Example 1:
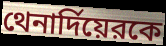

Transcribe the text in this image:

থেনার্দিয়েরকে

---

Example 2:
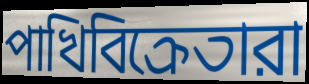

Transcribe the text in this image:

পাখিবিক্রেতারা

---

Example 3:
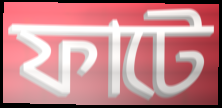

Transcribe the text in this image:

ফাটে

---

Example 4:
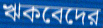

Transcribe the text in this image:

ঋকবেদের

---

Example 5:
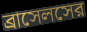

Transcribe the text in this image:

ব্রাসেলসের